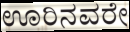
ಊರಿನವರೇ